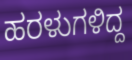
ಹರಳುಗಳಿದ್ದ